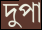
দুপা